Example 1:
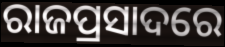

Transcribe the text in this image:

ରାଜପ୍ରସାଦରେ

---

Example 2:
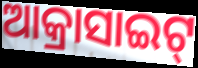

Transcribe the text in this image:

ଆକ୍ରାସାଇଟ୍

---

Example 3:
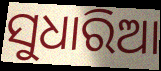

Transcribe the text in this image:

ସୁଧାରିଆ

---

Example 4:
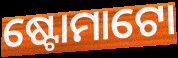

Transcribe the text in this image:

ଷ୍ଟୋମାଟୋ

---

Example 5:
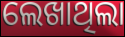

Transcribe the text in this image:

ଲେଖାଥିଲା